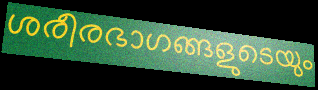
ശരീരഭാഗങ്ങളുടെയും